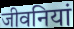
जीवनियां